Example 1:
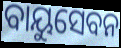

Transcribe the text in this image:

ବାୟୁସେବନ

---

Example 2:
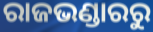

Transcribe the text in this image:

ରାଜଭଣ୍ଡାରରୁ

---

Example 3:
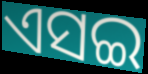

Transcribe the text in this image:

ଏସଇ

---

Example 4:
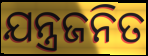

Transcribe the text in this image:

ଯନ୍ତ୍ରଜନିତ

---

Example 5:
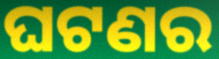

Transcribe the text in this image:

ଘଟଣର